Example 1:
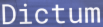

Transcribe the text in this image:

Dictum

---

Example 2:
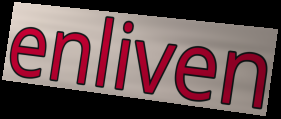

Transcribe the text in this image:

enliven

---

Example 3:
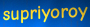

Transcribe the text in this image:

supriyoroy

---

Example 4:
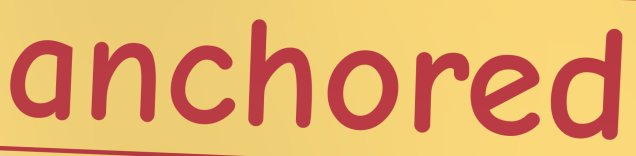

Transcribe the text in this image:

anchored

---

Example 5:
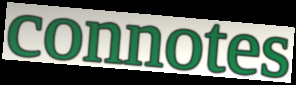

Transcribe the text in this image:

connotes